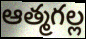
ఆత్మగల్ల